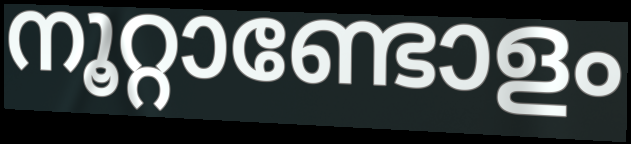
നൂറ്റാണ്ടോളം